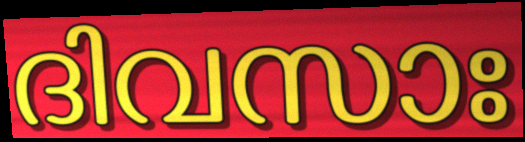
ദിവസാഃ